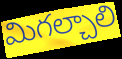
మిగల్చాలి